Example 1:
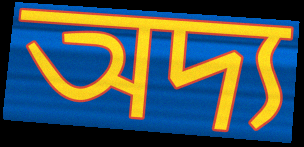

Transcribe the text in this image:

অদ্য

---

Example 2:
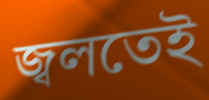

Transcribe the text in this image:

জ্বলতেই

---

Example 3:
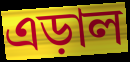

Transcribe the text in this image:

এড়াল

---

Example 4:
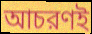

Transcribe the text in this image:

আচরণই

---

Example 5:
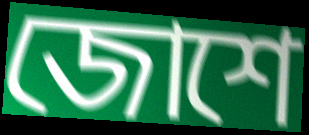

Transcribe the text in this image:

জোশে